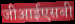
जीआईएसबी